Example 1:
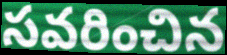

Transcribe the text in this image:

సవరించిన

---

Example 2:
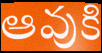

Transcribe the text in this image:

ఆవుకి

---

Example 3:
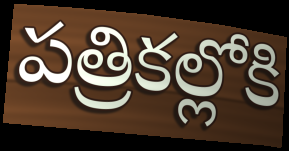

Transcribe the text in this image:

పత్రికల్లోకి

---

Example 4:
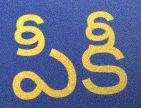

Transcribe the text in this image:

పీకీ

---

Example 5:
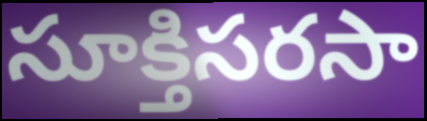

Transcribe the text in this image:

సూక్తిసరసా